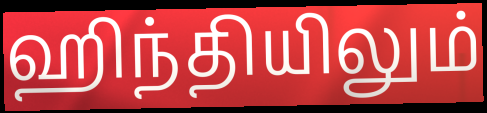
ஹிந்தியிலும்